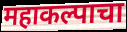
महाकल्पाचा